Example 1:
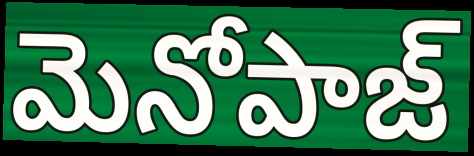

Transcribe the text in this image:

మెనోపాజ్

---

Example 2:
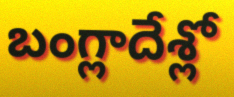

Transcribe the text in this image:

బంగ్లాదేశ్లో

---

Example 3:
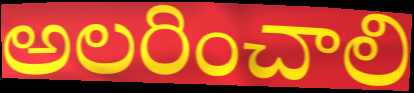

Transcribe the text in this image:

అలరించాలి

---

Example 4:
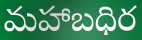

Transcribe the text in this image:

మహాబధిర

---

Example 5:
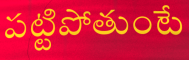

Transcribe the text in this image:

పట్టిపోతుంటే